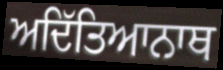
ਅਦਿੱਤਿਆਨਾਥ